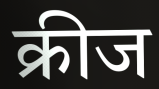
क्रीज